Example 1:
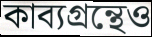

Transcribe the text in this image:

কাব্যগ্রন্থেও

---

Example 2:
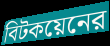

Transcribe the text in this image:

বিটকয়েনের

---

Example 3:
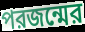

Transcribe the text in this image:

পরজন্মের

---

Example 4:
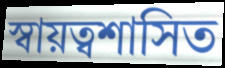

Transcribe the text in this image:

স্বায়ত্বশাসিত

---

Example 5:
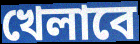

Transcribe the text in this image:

খেলাবে